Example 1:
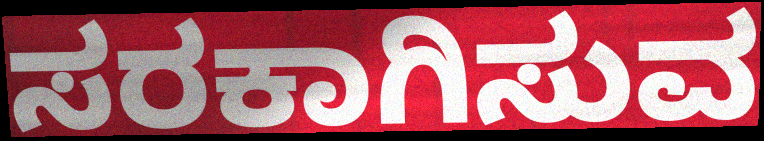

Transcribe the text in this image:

ಸರಕಾಗಿಸುವ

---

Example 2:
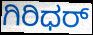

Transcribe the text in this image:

ಗಿರಿಧರ್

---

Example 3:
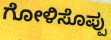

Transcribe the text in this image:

ಗೋಳಿಸೊಪ್ಪು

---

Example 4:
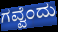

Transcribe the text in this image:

ಗವ್ವೆಂದು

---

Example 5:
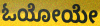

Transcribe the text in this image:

ಓಯೋಯೇ